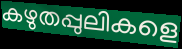
കഴുതപ്പുലികളെ